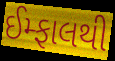
ઈમ્ફાલથી